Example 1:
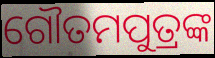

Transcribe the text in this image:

ଗୌତମପୁତ୍ରଙ୍କ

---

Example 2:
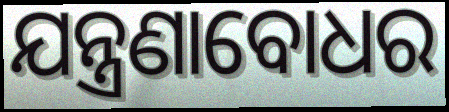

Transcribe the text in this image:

ଯନ୍ତ୍ରଣାବୋଧର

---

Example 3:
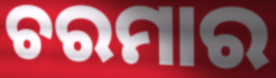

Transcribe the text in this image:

ଚରମାର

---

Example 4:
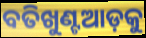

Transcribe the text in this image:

ବତିଖୁଣ୍ଟଆଡ଼କୁ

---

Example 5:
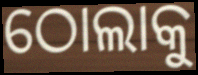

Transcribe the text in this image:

ଠୋଲାକୁ